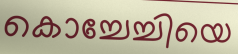
കൊച്ചേച്ചിയെ